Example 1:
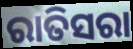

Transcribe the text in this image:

ରାତିସରା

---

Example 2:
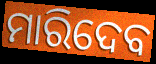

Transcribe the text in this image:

ମାରିଦେବ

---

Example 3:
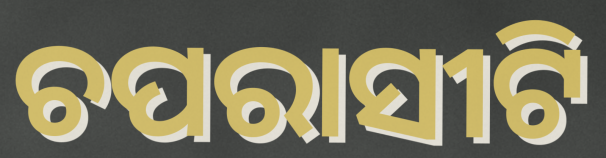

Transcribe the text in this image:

ଚପରାସୀଟି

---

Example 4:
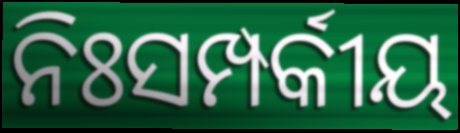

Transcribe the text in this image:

ନିଃସମ୍ପର୍କୀୟ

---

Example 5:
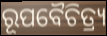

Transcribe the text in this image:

ରୂପବୈଚିତ୍ର୍ୟ